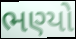
ભણ્યો